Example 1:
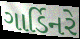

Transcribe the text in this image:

ગાર્ડિનરે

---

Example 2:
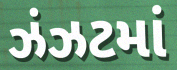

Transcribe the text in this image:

ઝંઝટમાં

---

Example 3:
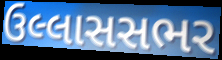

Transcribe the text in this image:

ઉલ્લાસસભર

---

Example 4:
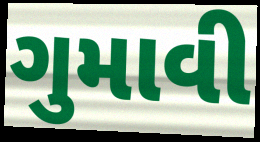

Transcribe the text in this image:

ગુમાવી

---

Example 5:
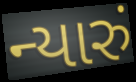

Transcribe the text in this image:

ન્યારું